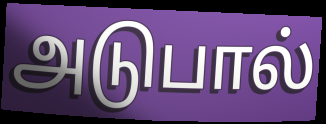
அடுபால்